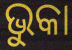
ଭୁକା